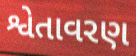
શ્વેતાવરણ